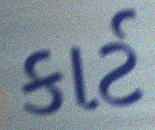
કાર્ટ